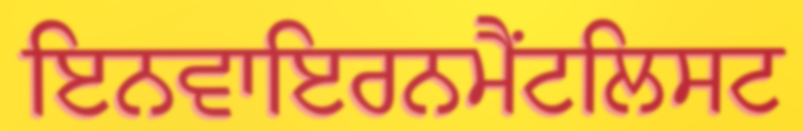
ਇਨਵਾਇਰਨਮੈਂਟਲਿਸਟ